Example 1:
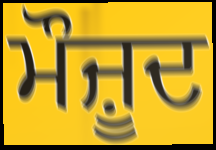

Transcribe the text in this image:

ਮੌਜ਼ੂਦ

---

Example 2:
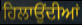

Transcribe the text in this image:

ਹਿਲਾਉਂਦੀਆਂ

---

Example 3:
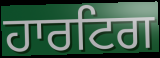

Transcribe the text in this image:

ਹਾਰਟਿਗ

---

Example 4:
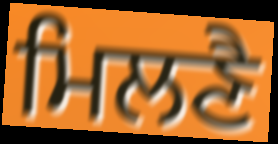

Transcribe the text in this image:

ਮਿਲਣੈ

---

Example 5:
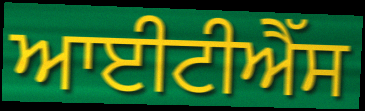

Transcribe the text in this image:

ਆਈਟੀਐੱਸ